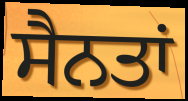
ਸੈਨਤਾਂ